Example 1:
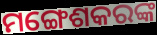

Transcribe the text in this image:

ମଙ୍ଗେଶକରଙ୍କ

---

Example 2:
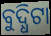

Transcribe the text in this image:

ବୁଦ୍ଧିଟା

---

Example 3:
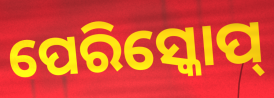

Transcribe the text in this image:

ପେରିସ୍କୋପ୍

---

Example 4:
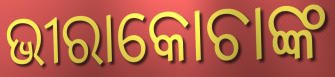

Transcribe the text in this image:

ଭୀରାକୋଚାଙ୍କ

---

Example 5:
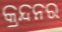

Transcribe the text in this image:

କ୍ରନ୍ଦନର